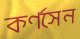
কর্ণসেন